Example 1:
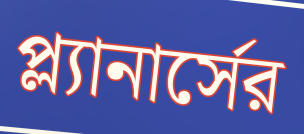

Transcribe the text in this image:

প্ল্যানার্সের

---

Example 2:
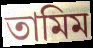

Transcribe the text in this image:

তামিম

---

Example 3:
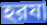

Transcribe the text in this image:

হরষা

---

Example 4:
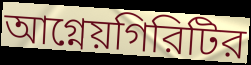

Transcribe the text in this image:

আগ্নেয়গিরিটির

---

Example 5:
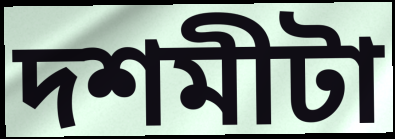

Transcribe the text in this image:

দশমীটা